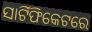
ସାର୍ଟିଫିକେଟରେ